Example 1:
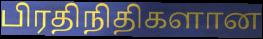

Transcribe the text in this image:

பிரதிநிதிகளான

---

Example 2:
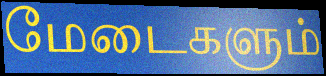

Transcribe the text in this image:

மேடைகளும்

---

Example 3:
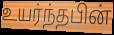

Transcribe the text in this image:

உயர்ந்தபின்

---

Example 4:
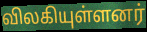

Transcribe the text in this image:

விலகியுள்ளனர்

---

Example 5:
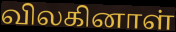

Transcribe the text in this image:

விலகினாள்